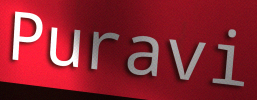
Puravi